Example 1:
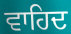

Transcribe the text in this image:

ਵਾਹਿਦ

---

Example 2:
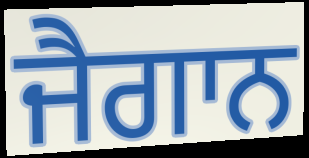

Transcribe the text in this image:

ਜੈਗਾਨ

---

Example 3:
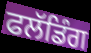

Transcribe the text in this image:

ਫਲੱਡਿੰਗ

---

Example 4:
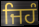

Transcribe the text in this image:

ਜਿਹੰ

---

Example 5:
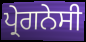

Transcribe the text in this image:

ਪ੍ਰੇਗਨੇਸੀ